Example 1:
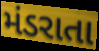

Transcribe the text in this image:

મંડરાતા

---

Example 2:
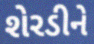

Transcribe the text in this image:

શેરડીને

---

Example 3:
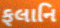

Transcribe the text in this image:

ફલાનિ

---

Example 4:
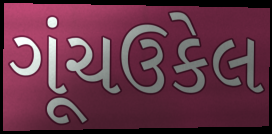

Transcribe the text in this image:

ગૂંચઉકેલ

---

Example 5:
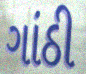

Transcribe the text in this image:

ગાંઠી